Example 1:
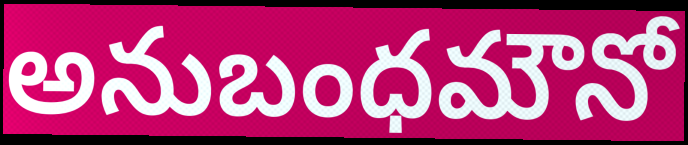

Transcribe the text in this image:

అనుబంధమౌనో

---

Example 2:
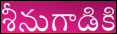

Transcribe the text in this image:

శీనుగాడికి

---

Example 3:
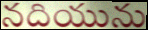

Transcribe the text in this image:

నదియును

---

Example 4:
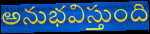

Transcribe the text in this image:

అనుభవిస్తుంది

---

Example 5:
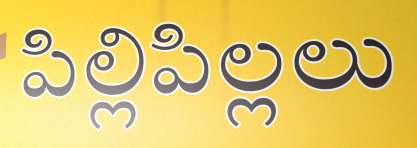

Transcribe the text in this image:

పిల్లిపిల్లలు